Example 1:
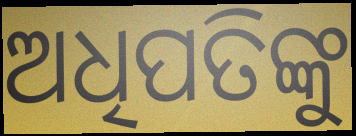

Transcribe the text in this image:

ଅଧିପତିଙ୍କୁ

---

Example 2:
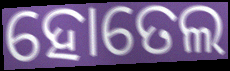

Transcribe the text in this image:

ହୋତେଲ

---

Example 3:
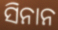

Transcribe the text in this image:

ସିନାନ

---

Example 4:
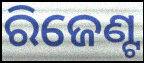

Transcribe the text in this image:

ରିଜେଣ୍ଟ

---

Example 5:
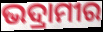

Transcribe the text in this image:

ଭଦ୍ରାମୀର